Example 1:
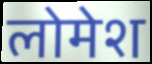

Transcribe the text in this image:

लोमेश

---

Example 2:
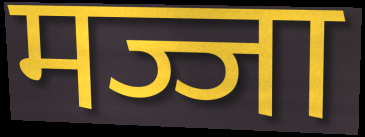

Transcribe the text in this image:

मज्जा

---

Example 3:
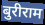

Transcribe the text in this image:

बुरीराम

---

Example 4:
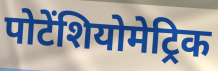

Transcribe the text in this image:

पोटेंशियोमेट्रिक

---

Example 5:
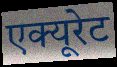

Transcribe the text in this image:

एक्यूरेट